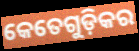
କେତେଗୁଡ଼ିକର